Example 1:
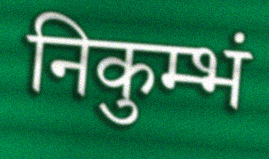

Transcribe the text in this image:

निकुम्भं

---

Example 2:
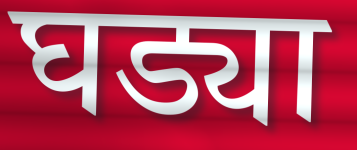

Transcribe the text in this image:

घड्या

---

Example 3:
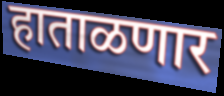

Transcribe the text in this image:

हाताळणार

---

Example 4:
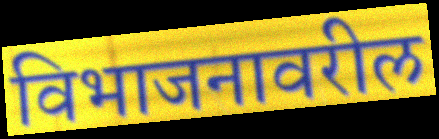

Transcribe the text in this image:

विभाजनावरील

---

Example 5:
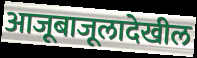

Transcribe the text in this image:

आजूबाजूलादेखील